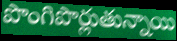
పొంగిపొర్లుతున్నాయి